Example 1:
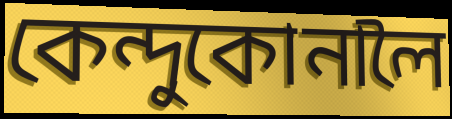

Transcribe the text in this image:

কেন্দুকোনালৈ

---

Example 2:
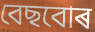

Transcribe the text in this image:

বেছবোৰ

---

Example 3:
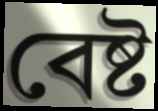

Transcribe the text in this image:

বেষ্ট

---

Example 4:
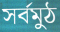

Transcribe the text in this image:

সৰ্বমুঠ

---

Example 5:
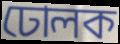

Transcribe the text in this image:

ঢোলক